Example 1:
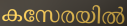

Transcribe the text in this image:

കസേരയിൽ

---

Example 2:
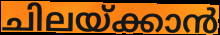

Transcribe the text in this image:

ചിലയ്ക്കാൻ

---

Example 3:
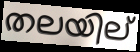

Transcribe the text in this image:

തലയില്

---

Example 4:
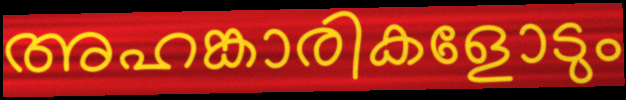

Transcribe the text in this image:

അഹങ്കാരികളോടും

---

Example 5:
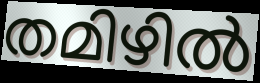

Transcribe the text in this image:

തമിഴിൽ